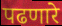
पढणारे